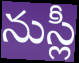
నుస్లీ